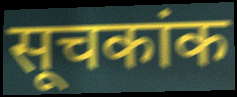
सूचकांक